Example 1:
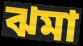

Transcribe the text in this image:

ঝমা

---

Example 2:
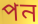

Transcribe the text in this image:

পন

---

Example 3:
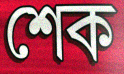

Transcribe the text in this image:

শেক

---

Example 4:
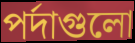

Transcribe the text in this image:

পর্দাগুলো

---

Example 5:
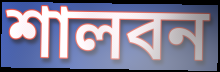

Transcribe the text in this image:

শালবন